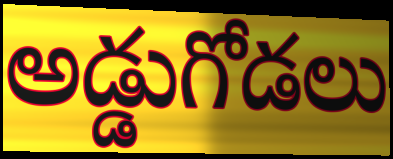
అడ్డుగోడలు